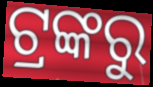
ଟ୍ରଙ୍କରୁ